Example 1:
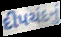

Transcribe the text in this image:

દીપચંદનું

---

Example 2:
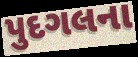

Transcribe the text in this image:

પુદગલના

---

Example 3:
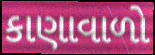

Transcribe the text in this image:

કાણાવાળો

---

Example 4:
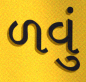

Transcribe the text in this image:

ળવું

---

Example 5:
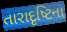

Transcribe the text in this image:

તારાદૃષ્ટિના